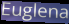
Euglena